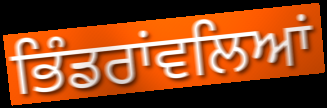
ਭਿੰਡਰਾਂਵਲਿਆਂ